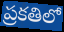
ప్రకతిలో